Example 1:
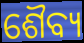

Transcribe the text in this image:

ଶୈବ୍ୟ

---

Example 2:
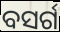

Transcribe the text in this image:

ବସର୍ଗ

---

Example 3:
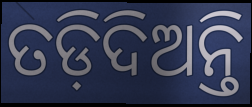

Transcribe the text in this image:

ତଡ଼ିଦିଅନ୍ତି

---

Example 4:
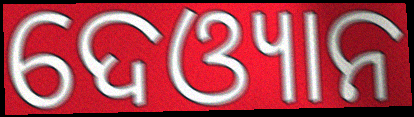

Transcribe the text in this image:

ଦେଓ୍ୟାନ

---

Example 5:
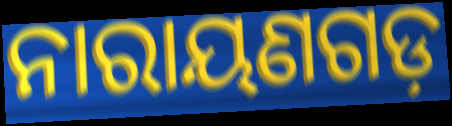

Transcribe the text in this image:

ନାରାୟଣଗଡ଼